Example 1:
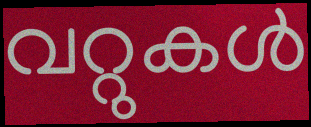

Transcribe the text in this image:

വറ്റുകൾ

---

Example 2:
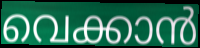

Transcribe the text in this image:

വെക്കാൻ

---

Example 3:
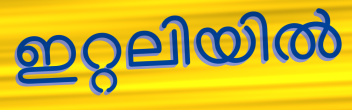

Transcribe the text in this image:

ഇറ്റലിയിൽ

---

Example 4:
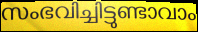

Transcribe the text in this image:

സംഭവിച്ചിട്ടുണ്ടാവാം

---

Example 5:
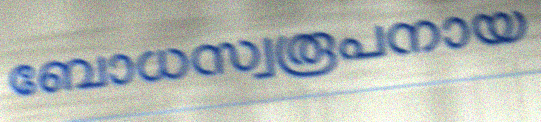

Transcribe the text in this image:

ബോധസ്വരൂപനായ